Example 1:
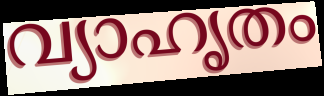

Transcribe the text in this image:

വ്യാഹൃതം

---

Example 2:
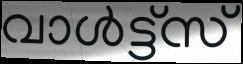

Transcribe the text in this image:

വാൾട്ട്സ്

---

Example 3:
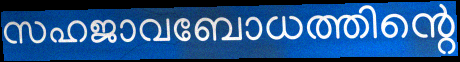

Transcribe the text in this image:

സഹജാവബോധത്തിന്റെ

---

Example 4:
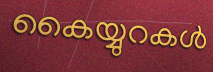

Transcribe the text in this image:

കൈയ്യുറകൾ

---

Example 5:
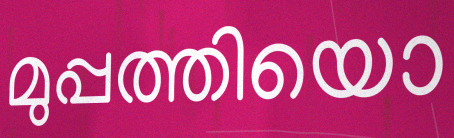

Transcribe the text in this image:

മുപ്പത്തിയൊ